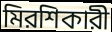
মিরশিকারী